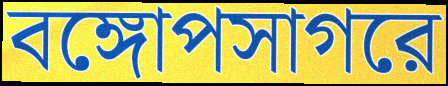
বঙ্গোপসাগরে